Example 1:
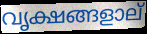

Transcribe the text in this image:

വൃക്ഷങ്ങളാല്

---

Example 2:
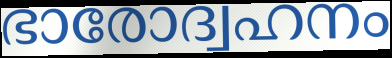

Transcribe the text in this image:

ഭാരോദ്വഹനം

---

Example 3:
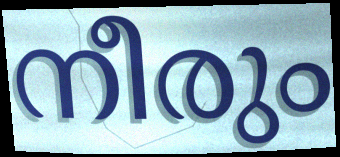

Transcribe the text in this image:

നീരും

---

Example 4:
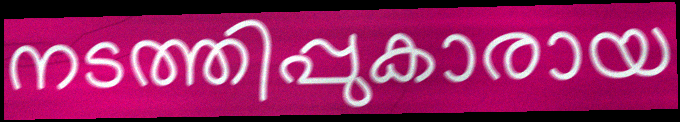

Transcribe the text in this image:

നടത്തിപ്പുകാരായ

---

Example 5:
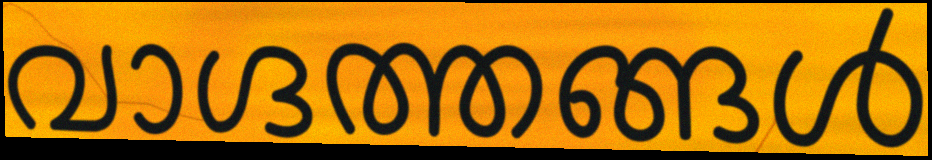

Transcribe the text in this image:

വാഗ്ദത്തങ്ങൾ